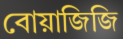
বোয়াজিজি